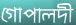
গোপালদী